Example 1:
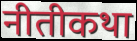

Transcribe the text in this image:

नीतीकथा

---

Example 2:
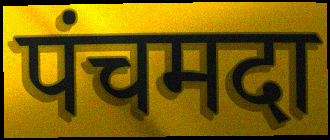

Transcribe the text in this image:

पंचमदा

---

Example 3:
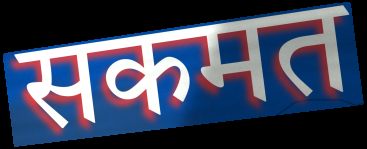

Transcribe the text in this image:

सकमत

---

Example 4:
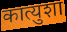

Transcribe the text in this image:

कात्युशा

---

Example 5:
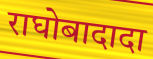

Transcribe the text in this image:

राघोबादादा